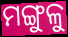
ମଙ୍ଗୁଳୁ